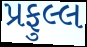
પ્રફુલ્લ